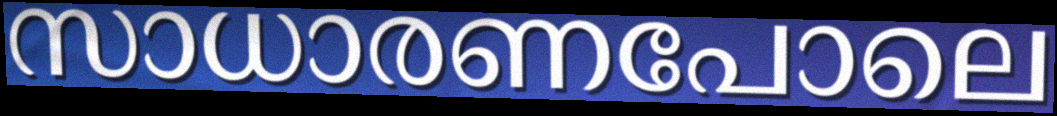
സാധാരണപോലെ